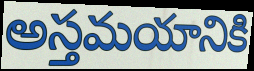
అస్తమయానికి